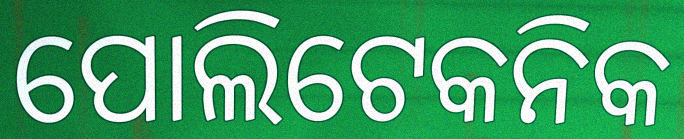
ପୋଲିଟେକନିକ